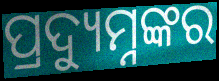
ପ୍ରଦ୍ୟୁମ୍ନଙ୍କର